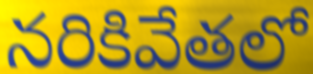
నరికివేతలో